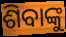
ଶିବାଙ୍କୁ